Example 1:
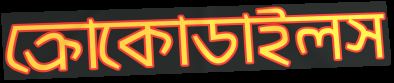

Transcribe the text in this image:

ক্রোকোডাইলস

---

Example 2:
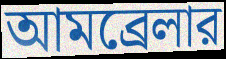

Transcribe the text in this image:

আমব্রেলার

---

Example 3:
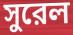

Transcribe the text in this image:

সুরেল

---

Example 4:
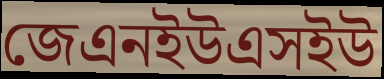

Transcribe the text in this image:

জেএনইউএসইউ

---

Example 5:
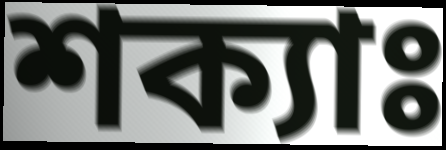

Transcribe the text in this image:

শক্যাঃ